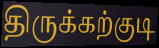
திருக்கற்குடி